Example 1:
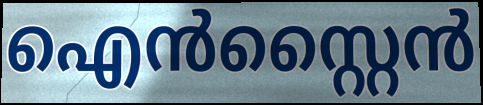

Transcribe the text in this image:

ഐൻസ്റ്റൈൻ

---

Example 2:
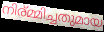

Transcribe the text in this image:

നിര്മ്മിച്ചതുമായ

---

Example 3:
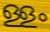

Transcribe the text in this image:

ള്ളം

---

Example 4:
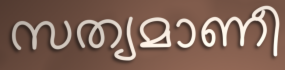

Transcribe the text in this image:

സത്യമാണീ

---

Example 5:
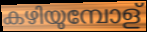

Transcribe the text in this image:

കഴിയുമ്പോള്